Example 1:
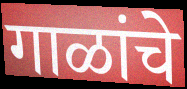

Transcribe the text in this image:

गाळांचे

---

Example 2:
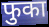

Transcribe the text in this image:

फुका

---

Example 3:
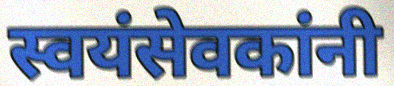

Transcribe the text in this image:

स्वयंसेवकांनी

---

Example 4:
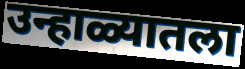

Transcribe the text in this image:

उन्हाळ्यातला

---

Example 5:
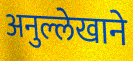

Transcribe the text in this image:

अनुल्लेखाने